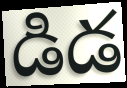
డిడ